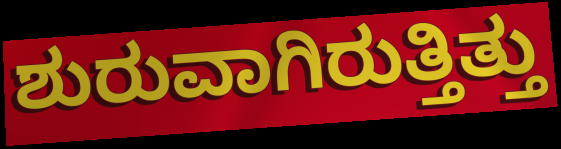
ಶುರುವಾಗಿರುತ್ತಿತ್ತು